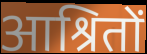
आश्रितों